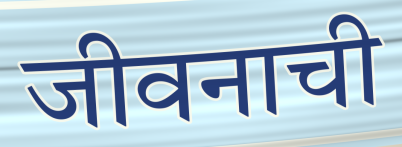
जीवनाची